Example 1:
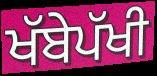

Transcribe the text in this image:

ਖੱਬੇਪੱਖੀ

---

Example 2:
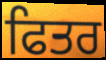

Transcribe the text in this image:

ਫਿਤਰ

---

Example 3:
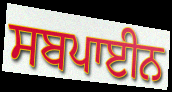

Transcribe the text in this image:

ਸਬਪਾਈਨ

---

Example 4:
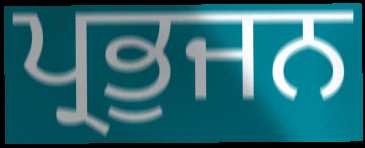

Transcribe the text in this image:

ਪ੍ਰਭੁਜਨ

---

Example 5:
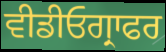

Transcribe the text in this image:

ਵੀਡੀਓਗ੍ਰਾਫਰ